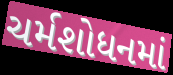
ચર્મશોધનમાં